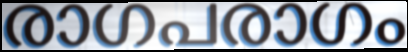
രാഗപരാഗം